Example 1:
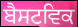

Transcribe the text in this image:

ਬੈਸਟਵਿਕ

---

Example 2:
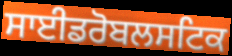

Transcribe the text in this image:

ਸਾਈਡਰੋਬਲਸਟਿਕ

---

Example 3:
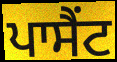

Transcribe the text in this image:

ਪਾਸੈਂਟ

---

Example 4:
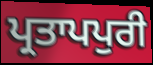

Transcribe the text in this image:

ਪ੍ਰਤਾਪਪੁਰੀ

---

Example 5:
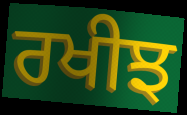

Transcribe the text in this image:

ਰਖੀਝ